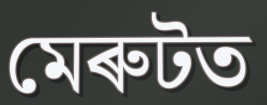
মেৰুটত